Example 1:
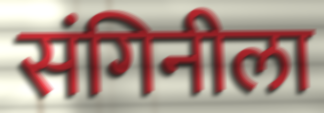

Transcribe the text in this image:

संगिनीला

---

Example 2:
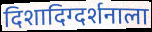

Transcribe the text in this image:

दिशादिग्दर्शनाला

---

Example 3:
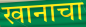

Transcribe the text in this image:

खानाचा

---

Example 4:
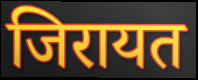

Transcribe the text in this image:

जिरायत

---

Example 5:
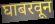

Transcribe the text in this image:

घाबरवून